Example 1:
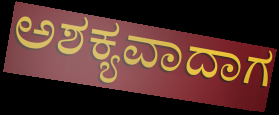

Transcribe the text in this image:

ಅಶಕ್ಯವಾದಾಗ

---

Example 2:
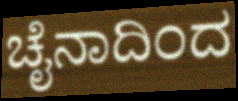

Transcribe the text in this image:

ಚೈನಾದಿಂದ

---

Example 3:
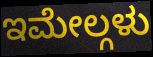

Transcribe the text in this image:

ಇಮೇಲ್ಗಳು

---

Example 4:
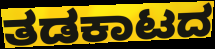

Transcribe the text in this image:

ತಡಕಾಟದ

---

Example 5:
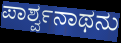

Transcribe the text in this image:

ಪಾರ್ಶ್ವನಾಥನು